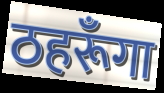
ठहरूँगा